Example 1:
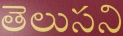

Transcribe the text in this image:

తెలుసని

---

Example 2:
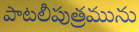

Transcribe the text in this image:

పాటలీపుత్రమును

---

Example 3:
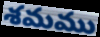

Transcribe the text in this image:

శమము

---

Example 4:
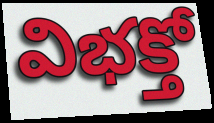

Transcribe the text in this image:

విభక్తో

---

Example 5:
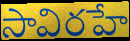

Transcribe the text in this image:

సావిరహే